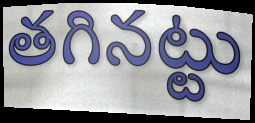
తగినట్టు